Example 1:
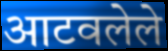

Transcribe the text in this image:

आटवलेले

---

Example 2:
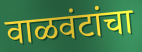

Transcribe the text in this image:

वाळवंटांचा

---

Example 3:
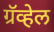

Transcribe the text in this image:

ग्रॅव्हेल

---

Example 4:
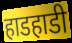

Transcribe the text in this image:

हाडहाडी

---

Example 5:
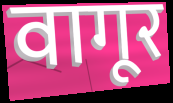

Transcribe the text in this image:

वागूर